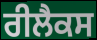
ਰੀਲੈਕਸ